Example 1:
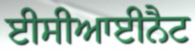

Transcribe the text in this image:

ਈਸੀਆਈਨੈਟ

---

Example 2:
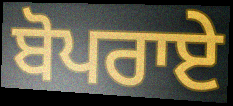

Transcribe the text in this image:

ਬੋਪਰਾਏ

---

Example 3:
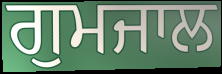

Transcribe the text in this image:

ਗੁਮਜਾਲ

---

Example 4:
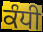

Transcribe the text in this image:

ਕੰਧੀ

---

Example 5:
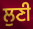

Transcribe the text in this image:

ਲੁਣੀ